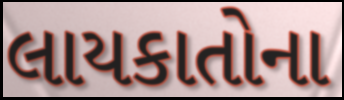
લાયકાતોના